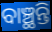
ବାଞ୍ଛନ୍ତି